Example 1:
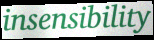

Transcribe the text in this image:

insensibility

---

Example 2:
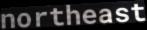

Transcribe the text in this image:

northeast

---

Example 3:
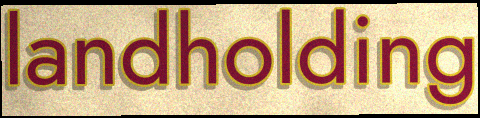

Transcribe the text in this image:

landholding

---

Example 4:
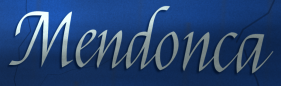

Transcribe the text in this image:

Mendonca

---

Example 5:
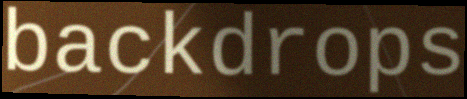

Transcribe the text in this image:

backdrops